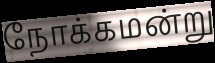
நோக்கமன்று